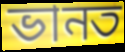
ভানত